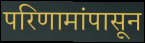
परिणामांपासून